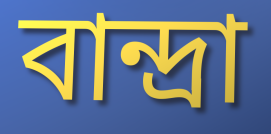
বান্দ্রা